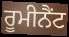
ਰੂਮੀਨੈਂਟ